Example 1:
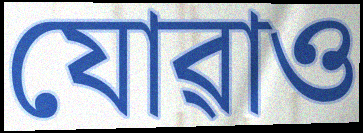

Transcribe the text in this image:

যোৱাও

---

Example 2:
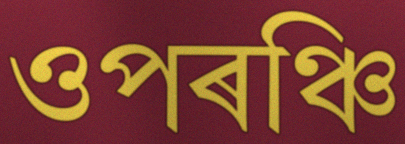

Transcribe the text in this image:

ওপৰঞ্চি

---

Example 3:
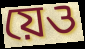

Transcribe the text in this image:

য়েও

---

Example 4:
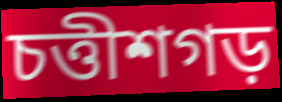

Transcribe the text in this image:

চত্তীশগড়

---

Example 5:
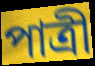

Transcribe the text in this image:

পাত্ৰী